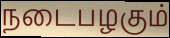
நடைபழகும்